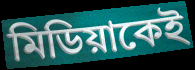
মিডিয়াকেই